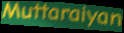
Muttaraiyan